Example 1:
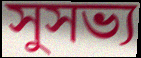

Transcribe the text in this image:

সুসভ্য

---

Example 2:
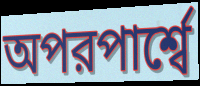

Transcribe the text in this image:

অপরপার্শ্বে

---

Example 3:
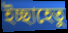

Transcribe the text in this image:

ইচ্ছাহেতু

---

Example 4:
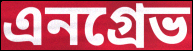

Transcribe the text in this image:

এনগ্রেভ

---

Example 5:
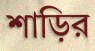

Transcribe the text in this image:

শাড়ির